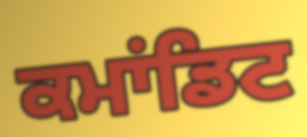
ਕਮਾਂਡਿਟ